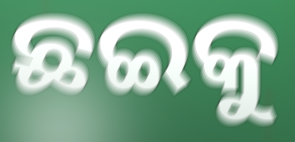
ଛଇକୁ